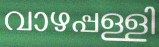
വാഴപ്പള്ളി